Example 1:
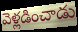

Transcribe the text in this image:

వెళ్లడించాడు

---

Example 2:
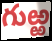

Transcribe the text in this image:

గుఱ్ఱ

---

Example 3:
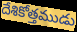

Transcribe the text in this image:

దేశికోత్తముడు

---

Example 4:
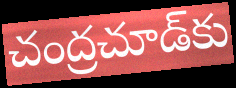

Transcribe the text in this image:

చంద్రచూడ్‌కు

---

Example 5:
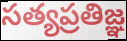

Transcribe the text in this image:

సత్యప్రతిజ్ఞ